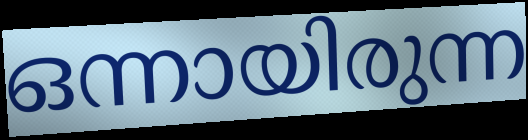
ഒന്നായിരുന്ന